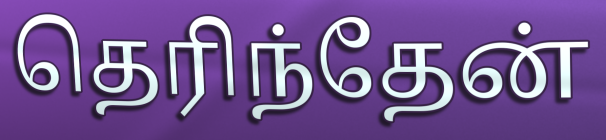
தெரிந்தேன்